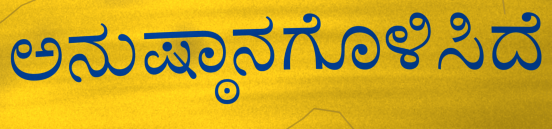
ಅನುಷ್ಠಾನಗೊಳಿಸಿದೆ